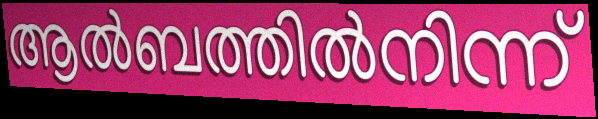
ആൽബത്തിൽനിന്ന്